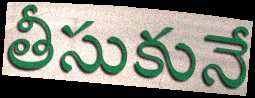
తీసుకునే